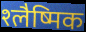
श्लैष्मिक